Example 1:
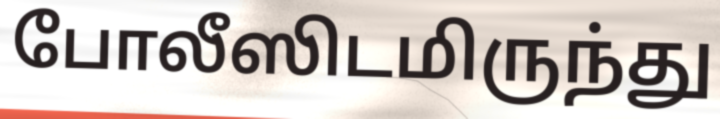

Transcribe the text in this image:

போலீஸிடமிருந்து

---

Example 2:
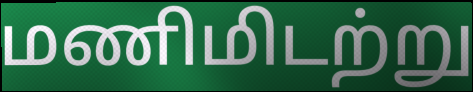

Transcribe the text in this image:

மணிமிடற்று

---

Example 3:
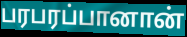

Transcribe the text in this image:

பரபரப்பானான்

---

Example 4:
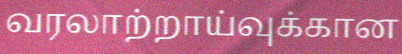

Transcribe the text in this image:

வரலாற்றாய்வுக்கான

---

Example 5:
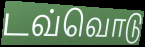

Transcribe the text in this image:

டவ்வொடு